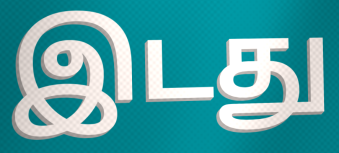
இடது